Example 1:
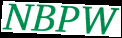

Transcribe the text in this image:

NBPW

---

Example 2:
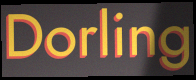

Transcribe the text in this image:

Dorling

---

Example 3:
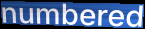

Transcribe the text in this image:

numbered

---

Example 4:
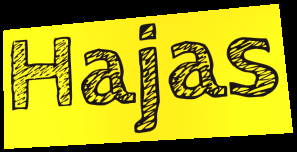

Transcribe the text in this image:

Hajas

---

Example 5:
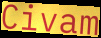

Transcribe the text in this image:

Civam